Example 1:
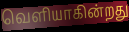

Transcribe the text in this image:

வெளியாகின்றது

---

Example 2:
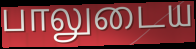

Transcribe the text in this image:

பாலுடைய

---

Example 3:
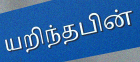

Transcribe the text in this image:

யறிந்தபின்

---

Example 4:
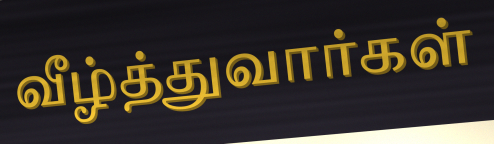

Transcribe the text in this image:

வீழ்த்துவார்கள்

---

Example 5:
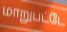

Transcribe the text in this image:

மாறுபட்டே